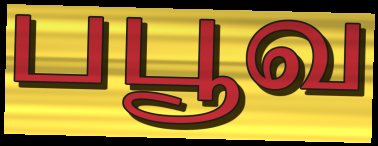
பபூவ